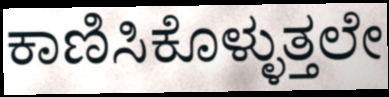
ಕಾಣಿಸಿಕೊಳ್ಳುತ್ತಲೇ